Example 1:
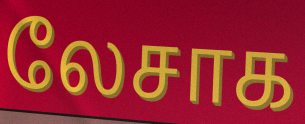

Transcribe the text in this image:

லேசாக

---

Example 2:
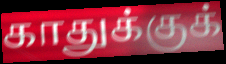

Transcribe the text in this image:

காதுக்குக்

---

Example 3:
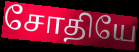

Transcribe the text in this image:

சோதியே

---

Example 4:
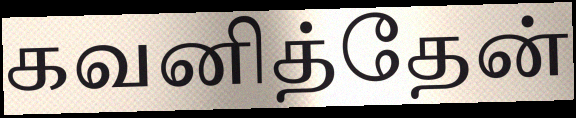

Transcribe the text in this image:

கவனித்தேன்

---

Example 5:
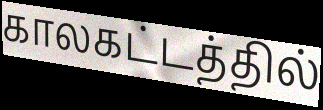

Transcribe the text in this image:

காலகட்டத்தில்